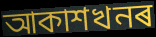
আকাশখনৰ